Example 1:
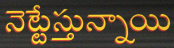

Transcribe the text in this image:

నెట్టేస్తున్నాయి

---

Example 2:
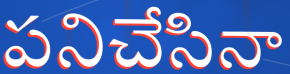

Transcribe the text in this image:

పనిచేసినా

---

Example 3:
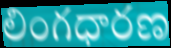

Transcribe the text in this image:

లింగధారణ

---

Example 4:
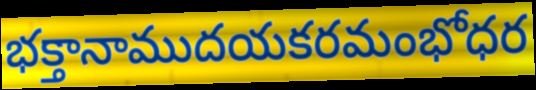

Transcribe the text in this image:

భక్తానాముదయకరమంభోధర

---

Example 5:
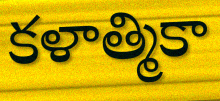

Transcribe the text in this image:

కళాత్మికా